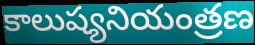
కాలుష్యనియంత్రణ